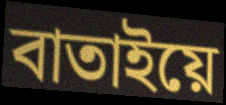
বাতাইয়ে